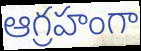
ఆగ్రహంగా